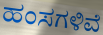
ಹಂಸಗಳಿವೆ